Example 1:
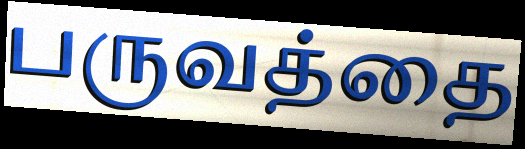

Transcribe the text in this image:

பருவத்தை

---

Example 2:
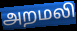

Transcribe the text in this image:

அறமலி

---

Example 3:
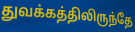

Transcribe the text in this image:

துவக்கத்திலிருந்தே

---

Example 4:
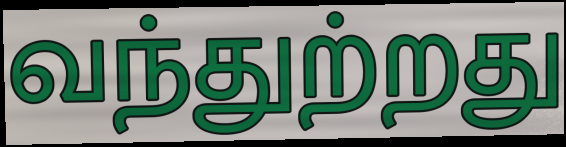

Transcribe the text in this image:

வந்துற்றது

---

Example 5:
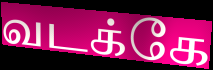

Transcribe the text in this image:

வடக்கே